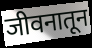
जीवनातून